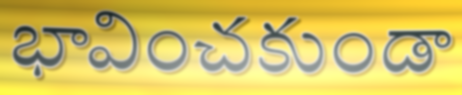
భావించకుండా